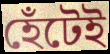
হেঁটেই